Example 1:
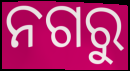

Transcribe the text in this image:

ନଗରୁ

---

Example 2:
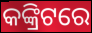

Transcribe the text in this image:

କଙ୍କ୍ରିଟରେ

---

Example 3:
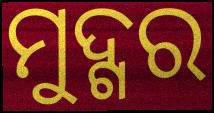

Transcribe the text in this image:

ମୁଦ୍ଗର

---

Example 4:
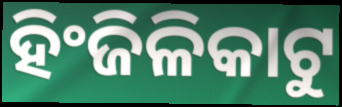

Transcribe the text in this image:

ହିଂଜିଳିକାଟୁ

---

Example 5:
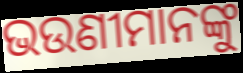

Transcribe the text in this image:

ଭଉଣୀମାନଙ୍କୁ